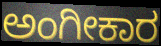
ಅಂಗೀಕಾರ